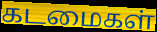
கடமைகள்